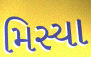
મિસ્યા